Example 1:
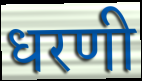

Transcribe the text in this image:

धरणी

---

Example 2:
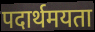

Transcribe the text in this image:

पदार्थमयता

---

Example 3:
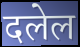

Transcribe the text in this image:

दलेल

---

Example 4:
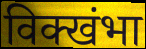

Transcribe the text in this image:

विक्खंभा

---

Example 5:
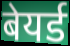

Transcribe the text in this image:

बेयर्ड